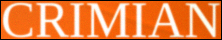
CRIMIAN